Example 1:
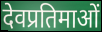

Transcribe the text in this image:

देवप्रतिमाओं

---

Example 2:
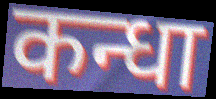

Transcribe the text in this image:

कन्धा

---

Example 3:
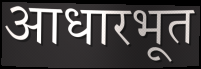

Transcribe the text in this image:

आधारभूत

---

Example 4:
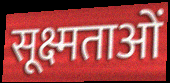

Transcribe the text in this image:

सूक्ष्मताओं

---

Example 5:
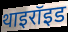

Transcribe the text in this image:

थाइरॉइड